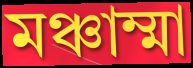
মঞ্চাম্মা